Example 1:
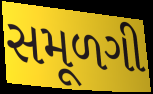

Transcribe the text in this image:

સમૂળગી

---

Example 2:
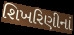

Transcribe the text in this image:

શિખરિણીનાં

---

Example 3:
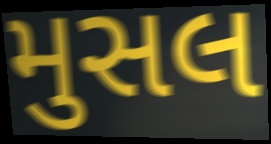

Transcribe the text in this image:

મુસલ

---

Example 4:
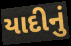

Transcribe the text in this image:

યાદીનું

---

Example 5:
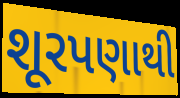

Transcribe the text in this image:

શૂરપણાથી